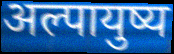
अल्पायुष्य